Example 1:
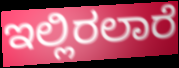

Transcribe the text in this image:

ಇಲ್ಲಿರಲಾರೆ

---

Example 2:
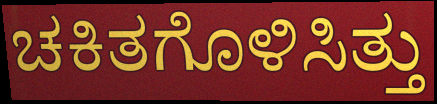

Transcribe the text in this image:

ಚಕಿತಗೊಳಿಸಿತ್ತು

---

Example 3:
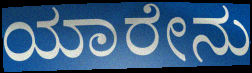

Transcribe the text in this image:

ಯಾರೇನು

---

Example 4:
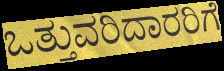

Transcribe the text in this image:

ಒತ್ತುವರಿದಾರರಿಗೆ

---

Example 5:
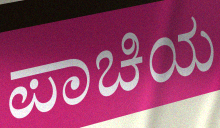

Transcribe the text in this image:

ಪಾಚಿಯ